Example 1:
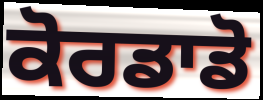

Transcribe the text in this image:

ਕੋਰਡਾਡੋ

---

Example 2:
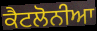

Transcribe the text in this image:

ਕੈਟਲੋਨੀਆ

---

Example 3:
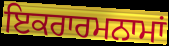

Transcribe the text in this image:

ਇਕਰਾਰਮਨਾਮਾਂ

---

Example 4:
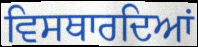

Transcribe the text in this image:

ਵਿਸਥਾਰਦਿਆਂ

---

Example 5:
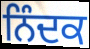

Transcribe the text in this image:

ਨਿੰਦਕ